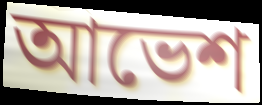
আভেশ